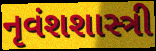
નૃવંશશાસ્ત્રી